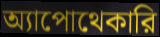
অ্যাপোথেকারি